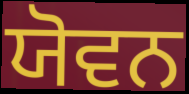
ਯੋਵਨ